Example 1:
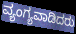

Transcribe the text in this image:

ವ್ಯಂಗ್ಯವಾಡಿದರು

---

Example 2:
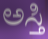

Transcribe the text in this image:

ಅಸ್ತಿ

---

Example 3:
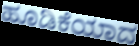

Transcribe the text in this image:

ಹೂಡಿಕೆಯಾದ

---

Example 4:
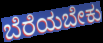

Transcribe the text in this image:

ಬೆರೆಯಬೇಕು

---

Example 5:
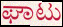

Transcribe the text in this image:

ಘಾಟು